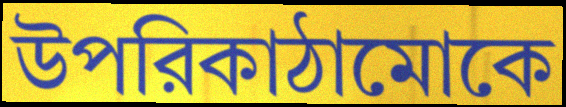
উপরিকাঠামোকে